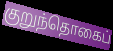
குறுந்தொகைப்